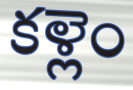
కళ్లెం